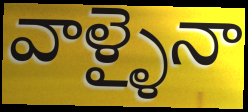
వాళ్ళైనా